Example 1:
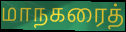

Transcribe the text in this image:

மாநகரைத்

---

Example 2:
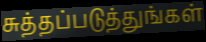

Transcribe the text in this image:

சுத்தப்படுத்துங்கள்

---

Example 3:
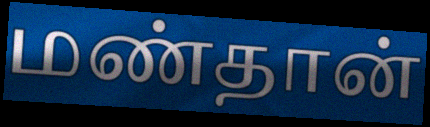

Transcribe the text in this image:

மண்தான்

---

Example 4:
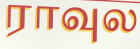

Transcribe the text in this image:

ராவுல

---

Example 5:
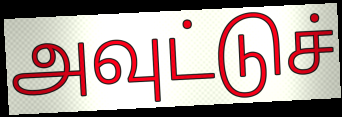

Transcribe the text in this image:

அவுட்டுச்